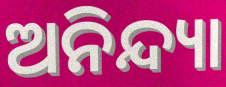
ଅନିନ୍ଦ୍ୟା